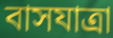
বাসযাত্রা